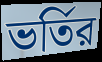
ভর্তির